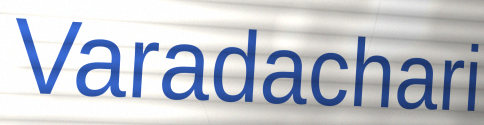
Varadachari